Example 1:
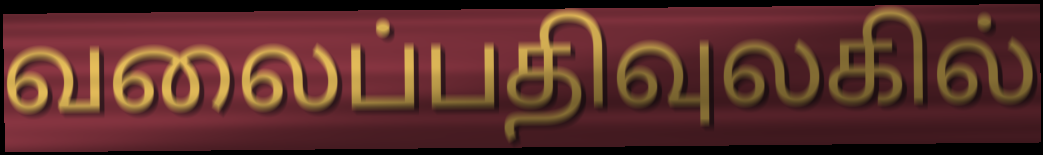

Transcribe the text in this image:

வலைப்பதிவுலகில்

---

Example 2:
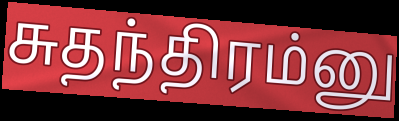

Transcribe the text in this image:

சுதந்திரம்னு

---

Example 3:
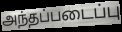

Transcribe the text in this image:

அந்தப்படைப்பு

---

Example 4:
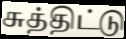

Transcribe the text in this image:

சுத்திட்டு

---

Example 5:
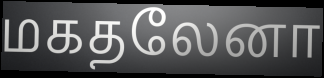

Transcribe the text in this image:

மகதலேனா